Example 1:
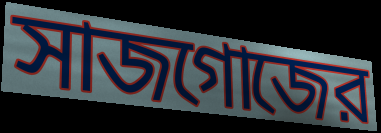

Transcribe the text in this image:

সাজগোজের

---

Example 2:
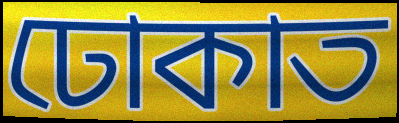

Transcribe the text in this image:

ঢোকাত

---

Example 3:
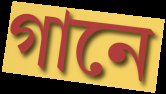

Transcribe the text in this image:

গানে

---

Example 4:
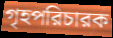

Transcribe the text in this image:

গৃহপরিচারক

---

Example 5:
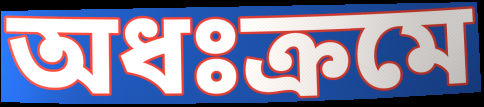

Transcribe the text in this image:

অধঃক্রমে